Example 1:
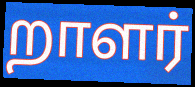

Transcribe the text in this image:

றாளர்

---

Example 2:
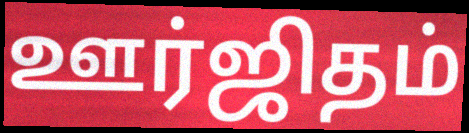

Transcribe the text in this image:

ஊர்ஜிதம்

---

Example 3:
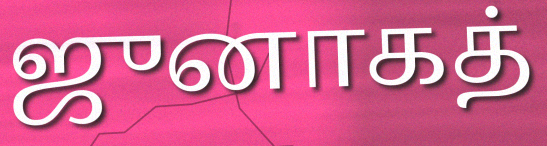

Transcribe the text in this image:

ஜுனாகத்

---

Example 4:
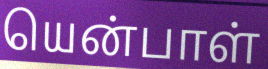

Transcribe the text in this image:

யென்பாள்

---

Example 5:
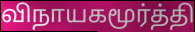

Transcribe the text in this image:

விநாயகமூர்த்தி